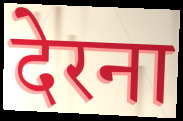
देरना